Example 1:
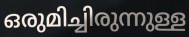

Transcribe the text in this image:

ഒരുമിച്ചിരുന്നുള്ള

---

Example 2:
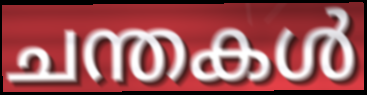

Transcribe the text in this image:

ചന്തകൾ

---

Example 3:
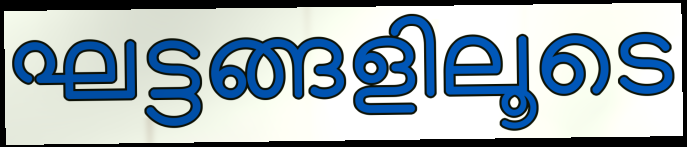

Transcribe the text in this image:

ഘട്ടങ്ങളിലൂടെ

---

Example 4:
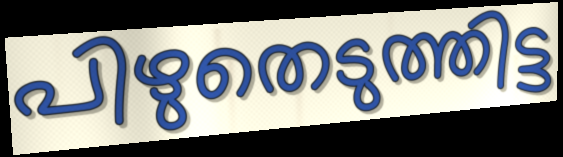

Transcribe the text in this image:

പിഴുതെടുത്തിട്ട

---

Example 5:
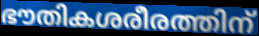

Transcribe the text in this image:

ഭൗതികശരീരത്തിന്